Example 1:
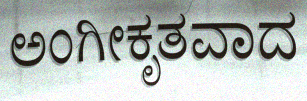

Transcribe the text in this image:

ಅಂಗೀಕೃತವಾದ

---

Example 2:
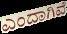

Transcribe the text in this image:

ಎಂದಾಗಿವೆ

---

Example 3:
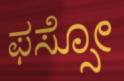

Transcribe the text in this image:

ಫಸ್ಸೋ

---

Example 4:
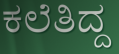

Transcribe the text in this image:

ಕಲೆತಿದ್ದ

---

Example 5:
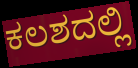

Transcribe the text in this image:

ಕಲಶದಲ್ಲಿ